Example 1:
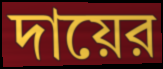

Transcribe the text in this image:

দায়ের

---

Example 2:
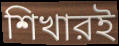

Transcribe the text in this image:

শিখারই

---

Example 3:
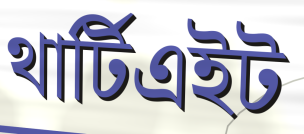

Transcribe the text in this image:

থার্টিএইট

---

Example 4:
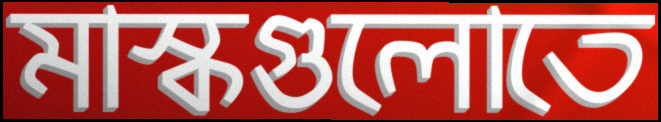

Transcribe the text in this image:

মাস্কগুলোতে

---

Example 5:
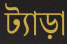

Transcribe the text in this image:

ট্যাড়া